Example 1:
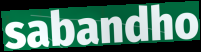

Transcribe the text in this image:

sabandho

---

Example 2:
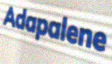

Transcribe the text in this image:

Adapalene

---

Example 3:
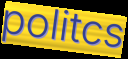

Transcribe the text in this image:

politcs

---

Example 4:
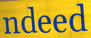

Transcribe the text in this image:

ndeed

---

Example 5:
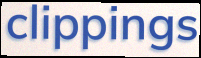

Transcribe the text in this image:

clippings